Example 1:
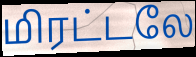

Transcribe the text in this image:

மிரட்டலே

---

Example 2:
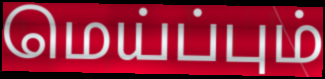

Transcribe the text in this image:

மெய்ப்பும்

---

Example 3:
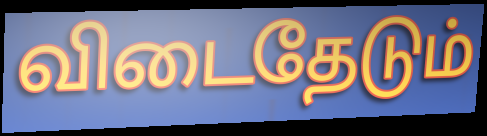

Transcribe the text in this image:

விடைதேடும்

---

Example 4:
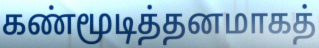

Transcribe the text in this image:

கண்மூடித்தனமாகத்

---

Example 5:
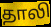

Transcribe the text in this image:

தாலி